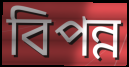
বিপন্ন